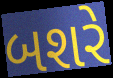
બશરે